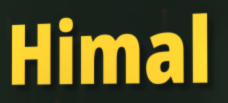
Himal